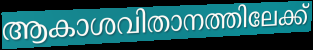
ആകാശവിതാനത്തിലേക്ക്